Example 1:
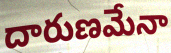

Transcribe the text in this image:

దారుణమేనా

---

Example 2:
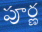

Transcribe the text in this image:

పూర్ణ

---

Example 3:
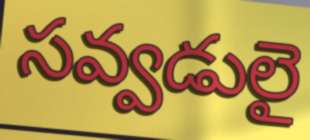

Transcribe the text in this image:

సవ్వడులై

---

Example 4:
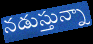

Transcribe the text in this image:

నడుస్తున్నా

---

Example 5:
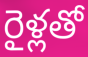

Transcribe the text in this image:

రైళ్లతో